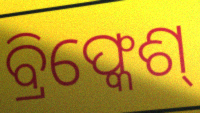
ବ୍ରିଫ୍କେଶ୍